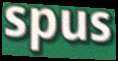
spus